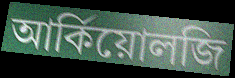
আর্কিয়োলজি